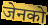
जेनको